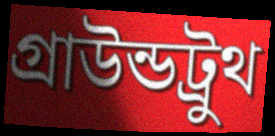
গ্রাউন্ডট্রুথ